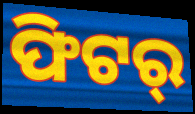
ଫିଟର୍